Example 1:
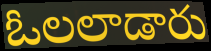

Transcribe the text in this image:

ఓలలాడారు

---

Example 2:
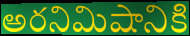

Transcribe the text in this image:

అరనిమిషానికి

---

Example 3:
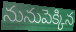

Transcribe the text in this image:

నునుపెక్కిన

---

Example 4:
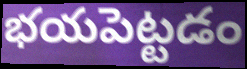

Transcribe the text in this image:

భయపెట్టడం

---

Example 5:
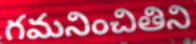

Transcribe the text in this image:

గమనించితిని